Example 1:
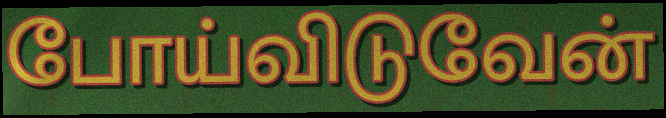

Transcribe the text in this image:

போய்விடுவேன்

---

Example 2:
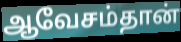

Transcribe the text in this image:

ஆவேசம்தான்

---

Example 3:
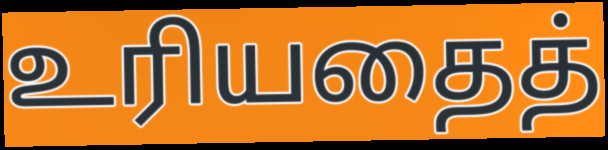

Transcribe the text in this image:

உரியதைத்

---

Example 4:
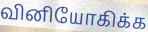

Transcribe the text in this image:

வினியோகிக்க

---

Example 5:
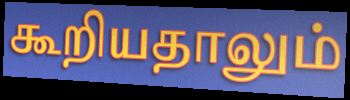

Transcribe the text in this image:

கூறியதாலும்